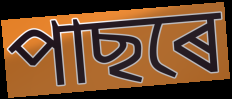
পাছৰে